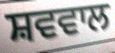
ਸ਼ਵਵਾਲ